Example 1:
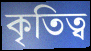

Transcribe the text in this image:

কৃতিত্ব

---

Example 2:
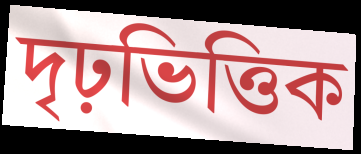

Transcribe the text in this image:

দৃঢ়ভিত্তিক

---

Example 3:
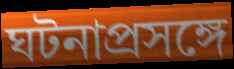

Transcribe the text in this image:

ঘটনাপ্রসঙ্গে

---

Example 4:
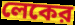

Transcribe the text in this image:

লেকের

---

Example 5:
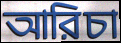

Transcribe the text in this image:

আরিচা